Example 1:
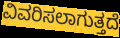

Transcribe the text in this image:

ವಿವರಿಸಲಾಗುತ್ತದೆ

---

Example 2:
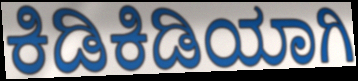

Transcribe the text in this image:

ಕಿಡಿಕಿಡಿಯಾಗಿ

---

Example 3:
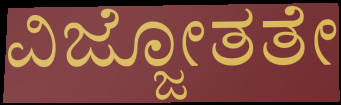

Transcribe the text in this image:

ವಿಜ್ಜೋತತೇ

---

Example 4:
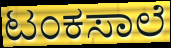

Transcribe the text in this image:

ಟಂಕಸಾಲೆ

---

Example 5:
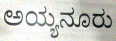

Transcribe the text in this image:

ಅಯ್ಯನೂರು